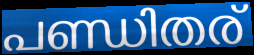
പണ്ഡിതര്